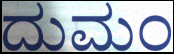
ದುಮಂ